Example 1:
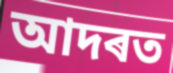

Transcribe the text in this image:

আদৰত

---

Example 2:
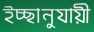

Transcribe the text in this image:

ইচ্ছানুযায়ী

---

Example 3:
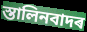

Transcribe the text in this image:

স্তালিনবাদৰ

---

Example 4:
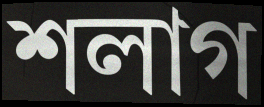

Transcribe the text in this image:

শলাগ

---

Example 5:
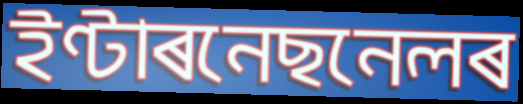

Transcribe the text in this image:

ইণ্টাৰনেছনেলৰ